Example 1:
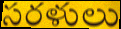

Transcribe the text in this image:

సరళులు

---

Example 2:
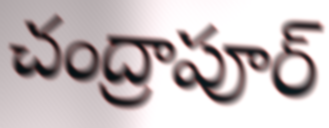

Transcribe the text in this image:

చంద్రాపూర్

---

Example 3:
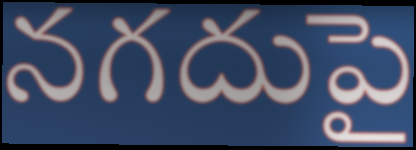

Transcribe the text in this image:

నగదుపై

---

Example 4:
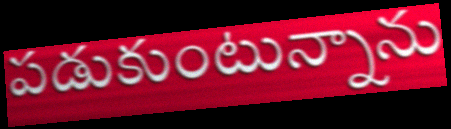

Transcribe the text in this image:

పడుకుంటున్నాను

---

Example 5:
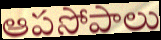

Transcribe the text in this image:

ఆపసోపాలు